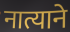
नात्याने